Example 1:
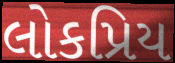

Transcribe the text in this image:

લોકપ્રિય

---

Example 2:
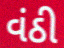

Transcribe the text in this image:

વંઠી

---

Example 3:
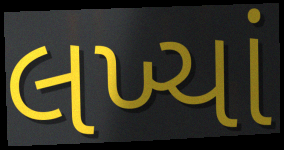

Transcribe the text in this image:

લખ્યાં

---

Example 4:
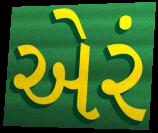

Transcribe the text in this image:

એરં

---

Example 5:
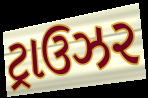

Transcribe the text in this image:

ટ્રાઉઝર